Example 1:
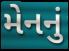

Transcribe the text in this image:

મેનનું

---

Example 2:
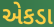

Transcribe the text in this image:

એકડા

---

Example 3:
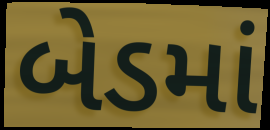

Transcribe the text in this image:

બેડમાં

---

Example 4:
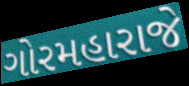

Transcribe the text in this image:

ગોરમહારાજે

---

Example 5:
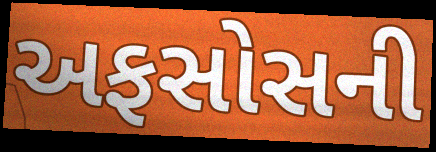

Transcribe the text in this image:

અફસોસની